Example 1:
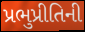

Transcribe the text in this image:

પ્રભુપ્રીતિની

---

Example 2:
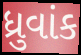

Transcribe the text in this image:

ધ્રુવાંક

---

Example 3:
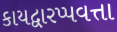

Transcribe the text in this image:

કાયદ્વારપ્પવત્તા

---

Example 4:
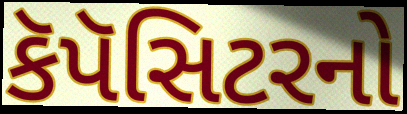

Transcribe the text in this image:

કૅપૅસિટરનો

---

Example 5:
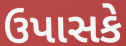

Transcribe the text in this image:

ઉપાસકે